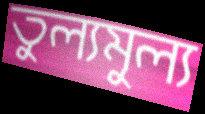
তুল্যমুল্য